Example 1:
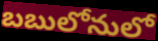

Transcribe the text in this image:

బబులోనులో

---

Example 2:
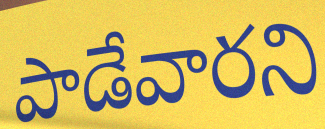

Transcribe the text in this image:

పాడేవారని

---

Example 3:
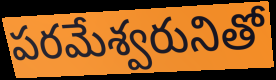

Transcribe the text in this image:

పరమేశ్వరునితో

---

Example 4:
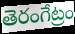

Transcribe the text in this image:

తెరంగేట్రం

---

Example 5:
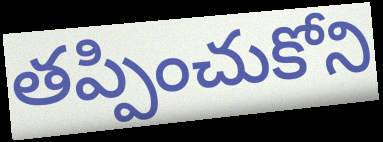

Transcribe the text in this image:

తప్పించుకోని